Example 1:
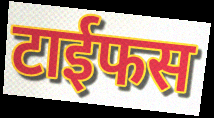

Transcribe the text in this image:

टाईफस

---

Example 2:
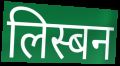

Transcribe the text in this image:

लिस्बन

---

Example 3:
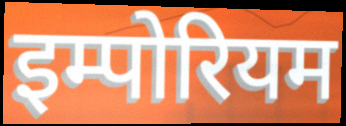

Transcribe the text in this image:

इम्पोरियम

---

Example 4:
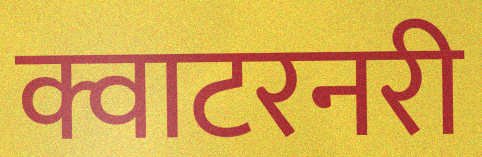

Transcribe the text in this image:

क्वाटरनरी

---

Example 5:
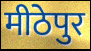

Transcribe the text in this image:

मीठेपुर